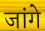
जांगे